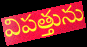
విపత్తును